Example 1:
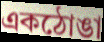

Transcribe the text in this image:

একঠোঙা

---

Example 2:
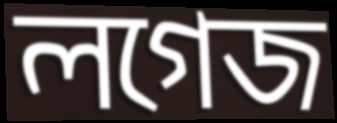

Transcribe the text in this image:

লগেজ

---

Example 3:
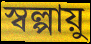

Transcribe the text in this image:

স্বল্পায়ু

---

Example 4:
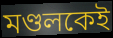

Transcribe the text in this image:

মণ্ডলকেই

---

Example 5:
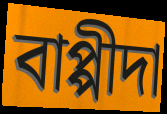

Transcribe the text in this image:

বাপ্পীদা